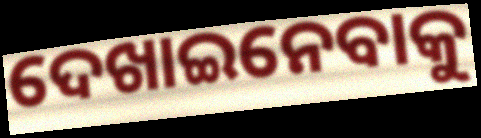
ଦେଖାଇନେବାକୁ